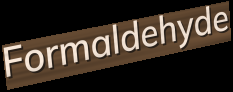
Formaldehyde